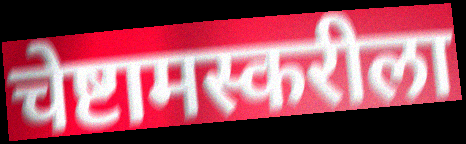
चेष्टामस्करीला